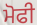
ਮੋਫੀ